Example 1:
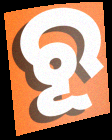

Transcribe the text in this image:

ରୂ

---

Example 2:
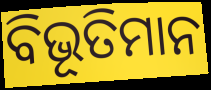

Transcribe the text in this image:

ବିଭୂତିମାନ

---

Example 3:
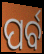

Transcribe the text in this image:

ପର୍ବ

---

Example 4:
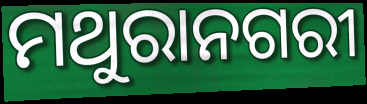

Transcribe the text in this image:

ମଥୁରାନଗରୀ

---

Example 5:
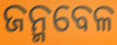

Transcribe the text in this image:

ଜନ୍ମବେଳ